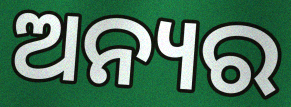
ଅନ୍ୟର